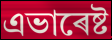
এভাৰেষ্ট